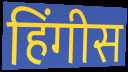
हिंगीस